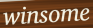
winsome